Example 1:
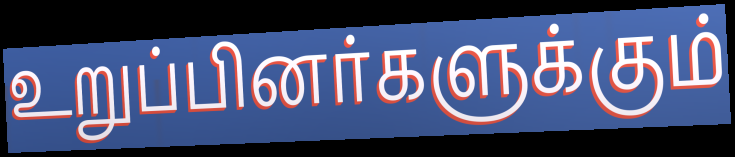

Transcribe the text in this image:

உறுப்பினர்களுக்கும்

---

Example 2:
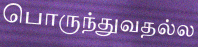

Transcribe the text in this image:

பொருந்துவதல்ல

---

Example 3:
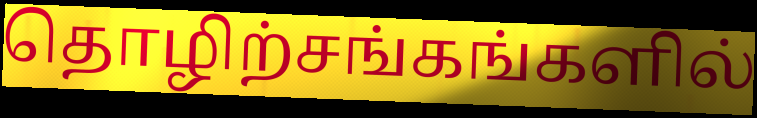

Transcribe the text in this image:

தொழிற்சங்கங்களில்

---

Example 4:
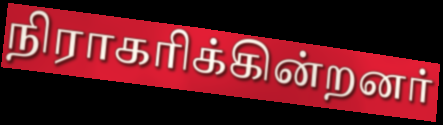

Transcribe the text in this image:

நிராகரிக்கின்றனர்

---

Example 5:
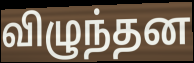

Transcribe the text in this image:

விழுந்தன